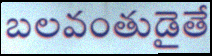
బలవంతుడైతే